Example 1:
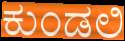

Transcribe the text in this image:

ಕುಂಡಲಿ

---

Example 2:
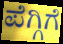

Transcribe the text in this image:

ಪೆಗ್ಗಿಗೆ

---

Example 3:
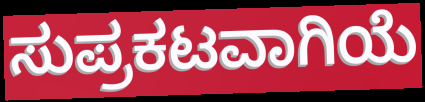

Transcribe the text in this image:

ಸುಪ್ರಕಟವಾಗಿಯೆ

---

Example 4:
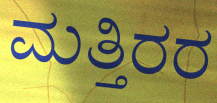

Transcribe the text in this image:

ಮತ್ತಿರರ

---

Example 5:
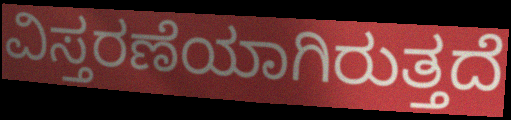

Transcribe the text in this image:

ವಿಸ್ತರಣೆಯಾಗಿರುತ್ತದೆ